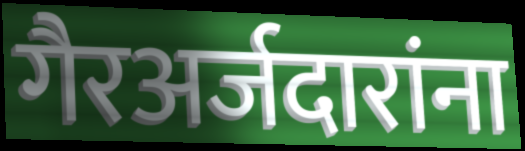
गैरअर्जदारांना